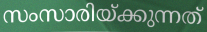
സംസാരിയ്ക്കുന്നത്